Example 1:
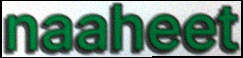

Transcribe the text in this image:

naaheet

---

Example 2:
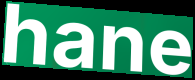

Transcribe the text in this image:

hane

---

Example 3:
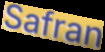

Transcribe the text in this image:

Safran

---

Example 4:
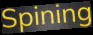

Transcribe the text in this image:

Spining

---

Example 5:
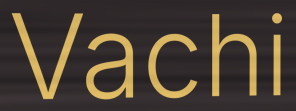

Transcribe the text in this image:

Vachi